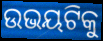
ଉଭୟଟିକୁ